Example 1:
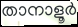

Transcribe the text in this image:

താനാളൂർ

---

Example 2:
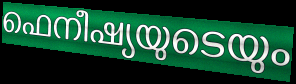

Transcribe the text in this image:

ഫെനീഷ്യയുടെയും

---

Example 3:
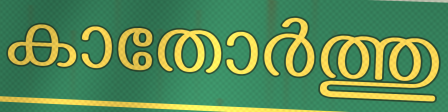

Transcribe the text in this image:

കാതോർത്തു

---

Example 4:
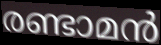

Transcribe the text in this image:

രണ്ടാമൻ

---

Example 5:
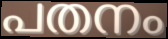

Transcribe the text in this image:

പതനം